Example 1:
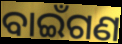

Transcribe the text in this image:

ବାଇଁଗଣ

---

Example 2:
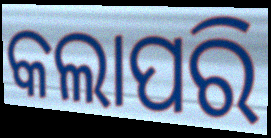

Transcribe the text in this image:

କଲାପରି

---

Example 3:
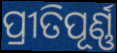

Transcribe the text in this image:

ପ୍ରୀତିପୂର୍ଣ୍ଣ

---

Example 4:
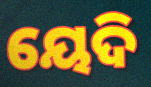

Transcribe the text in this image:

ୟେଦି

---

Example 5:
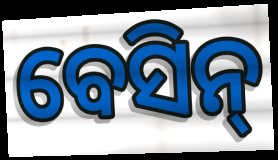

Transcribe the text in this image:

ବେସିନ୍